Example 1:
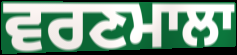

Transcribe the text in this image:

ਵਰਣਮਾਲਾ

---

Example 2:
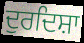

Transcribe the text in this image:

ਦੁਰਦਿਸ਼ਾ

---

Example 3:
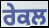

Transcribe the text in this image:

ਰੇਕਲ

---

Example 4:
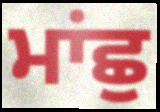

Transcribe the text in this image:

ਮਾਂਛੁ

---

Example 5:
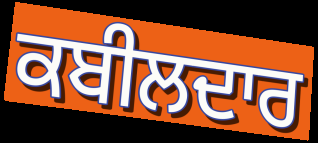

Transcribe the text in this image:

ਕਬੀਲਦਾਰ